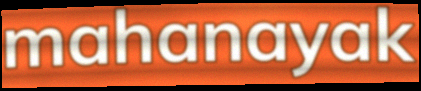
mahanayak